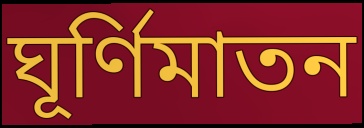
ঘূর্ণিমাতন